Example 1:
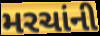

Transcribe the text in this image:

મરચાંની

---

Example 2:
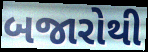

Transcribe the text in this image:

બજારોથી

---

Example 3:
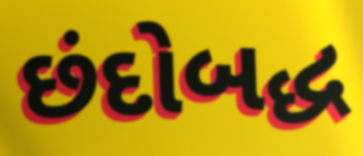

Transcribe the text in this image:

છંદોબદ્ધ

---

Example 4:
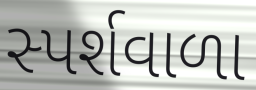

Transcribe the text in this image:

સ્પર્શવાળા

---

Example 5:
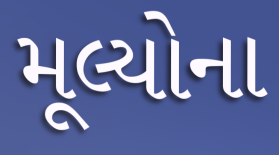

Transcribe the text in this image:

મૂલ્યોના